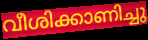
വീശിക്കാണിച്ചു